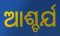
ଆଶ୍ଚର୍ଯ